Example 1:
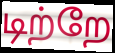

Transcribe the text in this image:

டிற்றே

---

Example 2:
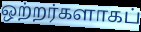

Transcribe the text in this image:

ஒற்றர்களாகப்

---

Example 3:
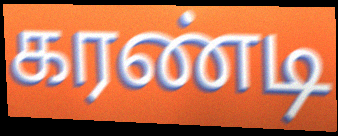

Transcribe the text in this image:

கரண்டி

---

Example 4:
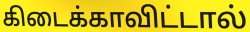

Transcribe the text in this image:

கிடைக்காவிட்டால்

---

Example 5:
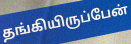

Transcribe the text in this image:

தங்கியிருப்பேன்